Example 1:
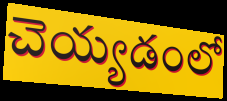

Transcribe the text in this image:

చెయ్యడంలో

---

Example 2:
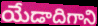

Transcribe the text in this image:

యేడాదిగాని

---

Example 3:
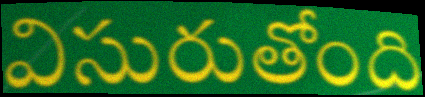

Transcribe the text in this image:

విసురుతోంది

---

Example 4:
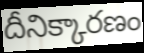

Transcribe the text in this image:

దీనిక్కారణం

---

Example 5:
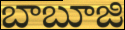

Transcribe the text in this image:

బాబూజి